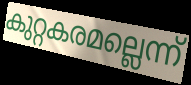
കുറ്റകരമല്ലെന്ന്